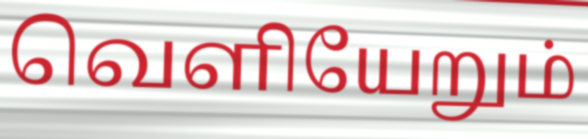
வெளியேறும்